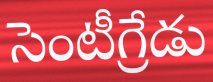
సెంటీగ్రేడు